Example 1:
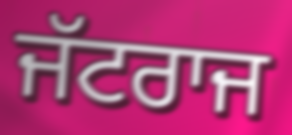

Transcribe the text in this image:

ਜੱਟਰਾਜ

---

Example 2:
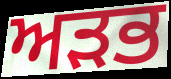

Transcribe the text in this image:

ਅੜਭ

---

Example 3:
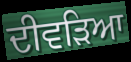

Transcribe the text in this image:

ਦੀਵੜਿਆ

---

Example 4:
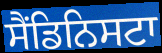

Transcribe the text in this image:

ਸੈਂਡਿਨਿਸਟਾ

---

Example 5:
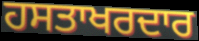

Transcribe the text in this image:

ਹਸਤਾਖਰਦਾਰ